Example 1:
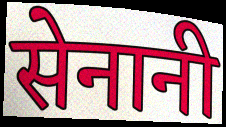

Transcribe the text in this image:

सेनानी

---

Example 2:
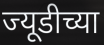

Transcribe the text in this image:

ज्यूडीच्या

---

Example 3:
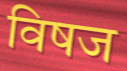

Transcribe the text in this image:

विषज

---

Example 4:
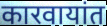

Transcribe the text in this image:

कारवायांत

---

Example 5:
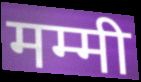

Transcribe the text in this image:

मम्मी